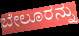
ಬೇಲೂರನ್ನು